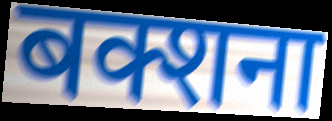
बक्शना